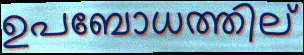
ഉപബോധത്തില്